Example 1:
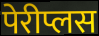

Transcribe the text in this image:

पेरीप्लस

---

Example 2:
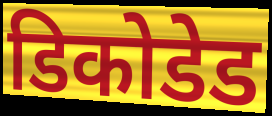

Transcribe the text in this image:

डिकोडेड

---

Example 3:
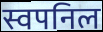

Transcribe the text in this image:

स्वपनिल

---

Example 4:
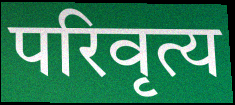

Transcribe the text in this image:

परिवृत्य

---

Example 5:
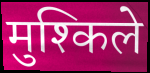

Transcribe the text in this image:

मुश्किले